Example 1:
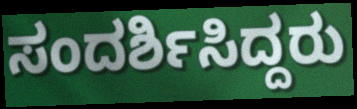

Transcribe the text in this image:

ಸಂದರ್ಶಿಸಿದ್ದರು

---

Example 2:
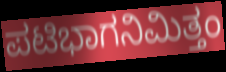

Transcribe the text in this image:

ಪಟಿಭಾಗನಿಮಿತ್ತಂ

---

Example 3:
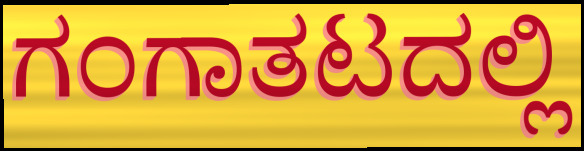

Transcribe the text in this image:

ಗಂಗಾತಟದಲ್ಲಿ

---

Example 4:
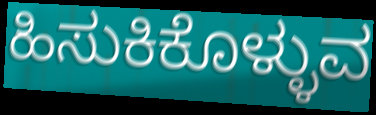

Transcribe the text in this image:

ಹಿಸುಕಿಕೊಳ್ಳುವ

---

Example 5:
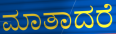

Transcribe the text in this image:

ಮಾತಾದರೆ